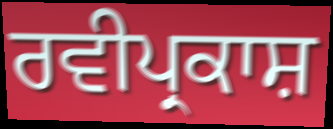
ਰਵੀਪ੍ਰਕਾਸ਼